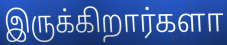
இருக்கிறார்களா